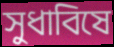
সুধাবিষে